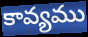
కావ్యము